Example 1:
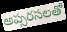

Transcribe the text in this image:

అప్సరసలతో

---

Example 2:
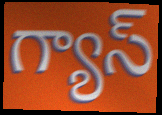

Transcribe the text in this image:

గ్యాస్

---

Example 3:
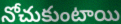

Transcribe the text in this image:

నోచుకుంటాయి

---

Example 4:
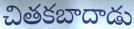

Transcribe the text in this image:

చితకబాదాడు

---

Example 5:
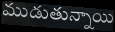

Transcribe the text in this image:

ముడుతున్నాయి